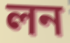
লন